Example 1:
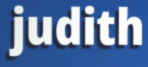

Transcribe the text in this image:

judith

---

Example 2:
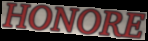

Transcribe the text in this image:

HONORE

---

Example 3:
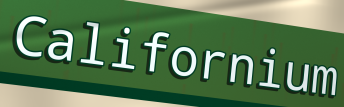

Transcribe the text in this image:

Californium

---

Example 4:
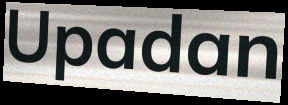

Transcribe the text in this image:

Upadan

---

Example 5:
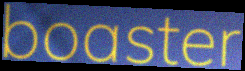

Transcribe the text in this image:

boaster